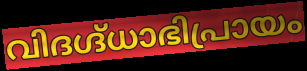
വിദഗ്ദ്ധാഭിപ്രായം